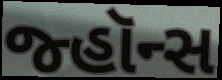
જ્હૉન્સ